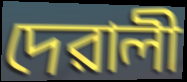
দেৱালী